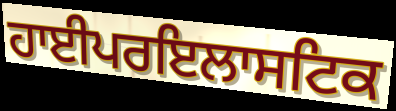
ਹਾਈਪਰਇਲਾਸਟਿਕ